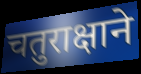
चतुराक्षाने